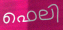
ഫെലി